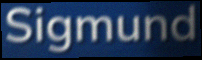
Sigmund